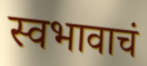
स्वभावाचं